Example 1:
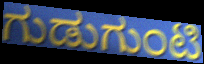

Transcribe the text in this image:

ಗುಡುಗುಂಟಿ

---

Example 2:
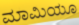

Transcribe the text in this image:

ಮಾಮಿಯೂ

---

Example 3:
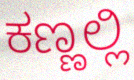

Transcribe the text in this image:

ಕಣ್ಣಲ್ಲಿ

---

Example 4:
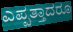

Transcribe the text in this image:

ಎಪ್ಪತ್ತಾದರೂ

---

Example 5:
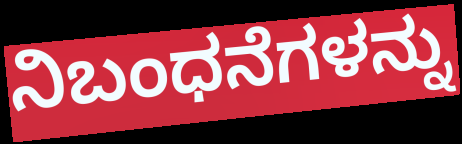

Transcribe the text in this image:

ನಿಬಂಧನೆಗಳನ್ನು